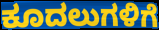
ಕೂದಲುಗಳಿಗೆ